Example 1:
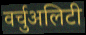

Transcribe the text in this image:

वर्चुअलिटी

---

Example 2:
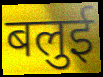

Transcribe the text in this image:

बलुई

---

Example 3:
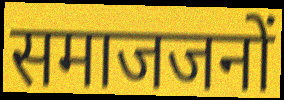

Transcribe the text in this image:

समाजजनों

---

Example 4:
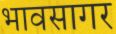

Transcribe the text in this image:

भावसागर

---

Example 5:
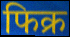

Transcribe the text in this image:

फिक्र